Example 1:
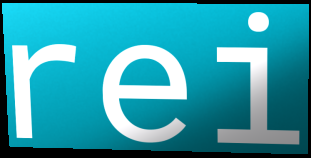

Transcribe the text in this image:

rei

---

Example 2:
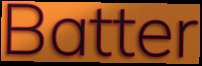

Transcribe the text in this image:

Batter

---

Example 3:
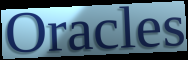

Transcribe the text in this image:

Oracles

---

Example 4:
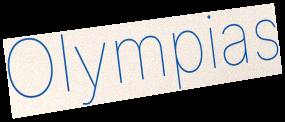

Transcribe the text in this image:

Olympias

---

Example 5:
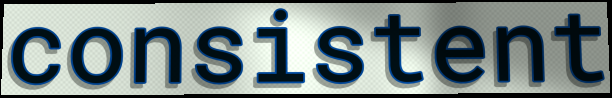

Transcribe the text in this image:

consistent